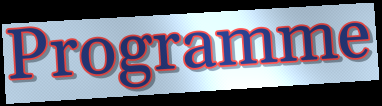
Programme